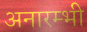
अनारम्भी